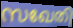
സഖേതി